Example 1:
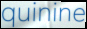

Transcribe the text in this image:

quinine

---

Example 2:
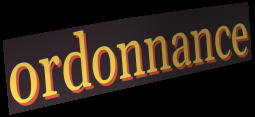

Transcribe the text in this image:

ordonnance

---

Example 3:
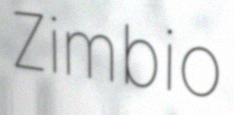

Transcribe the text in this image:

Zimbio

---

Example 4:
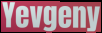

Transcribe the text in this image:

Yevgeny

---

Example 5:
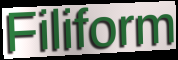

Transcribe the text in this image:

Filiform